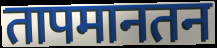
तापमानतन